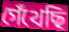
গেঁথেছি